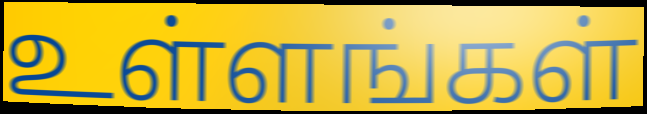
உள்ளங்கள்